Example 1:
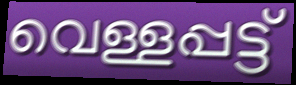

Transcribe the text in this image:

വെള്ളപ്പട്ട്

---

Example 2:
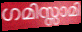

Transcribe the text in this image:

ഗമിസ്സാമി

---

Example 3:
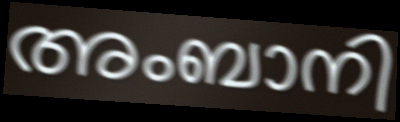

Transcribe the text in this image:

അംബാനി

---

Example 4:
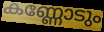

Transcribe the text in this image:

കണ്ണോടും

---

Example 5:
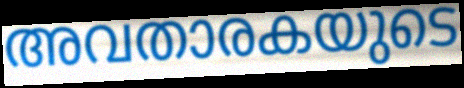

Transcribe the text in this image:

അവതാരകയുടെ